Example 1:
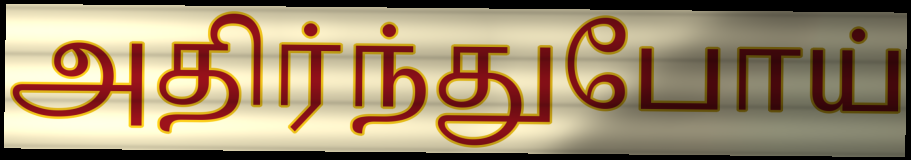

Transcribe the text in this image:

அதிர்ந்துபோய்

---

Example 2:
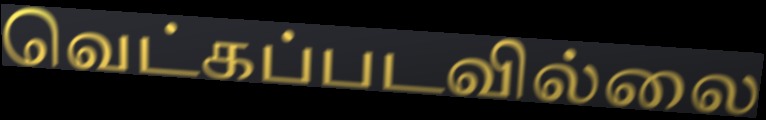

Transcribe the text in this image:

வெட்கப்படவில்லை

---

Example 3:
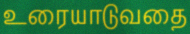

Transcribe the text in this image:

உரையாடுவதை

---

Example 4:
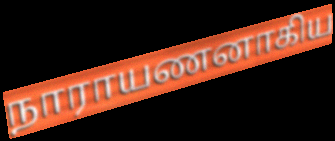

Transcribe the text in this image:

நாராயணனாகிய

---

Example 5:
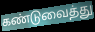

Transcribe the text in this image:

கண்டுவைத்து